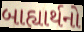
બાહ્યાર્થનો